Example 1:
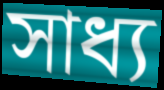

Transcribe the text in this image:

সাধ্য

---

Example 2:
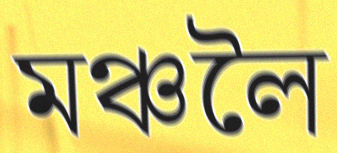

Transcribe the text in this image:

মঞ্চলৈ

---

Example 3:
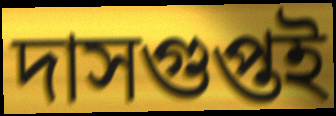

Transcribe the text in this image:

দাসগুপ্তই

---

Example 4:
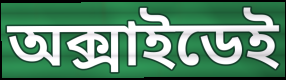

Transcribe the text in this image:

অক্সাইডেই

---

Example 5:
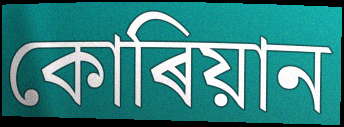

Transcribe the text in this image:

কোৰিয়ান